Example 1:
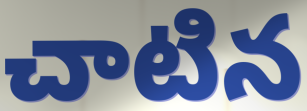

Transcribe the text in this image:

చాటిన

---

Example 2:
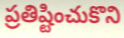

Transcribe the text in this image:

ప్రతిష్టించుకొని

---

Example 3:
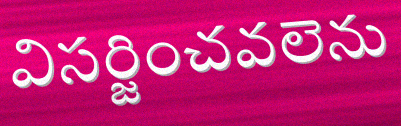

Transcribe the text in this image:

విసర్జించవలెను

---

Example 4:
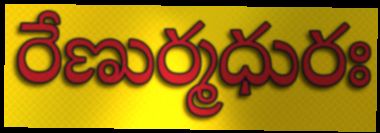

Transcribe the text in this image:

రేణుర్మధురః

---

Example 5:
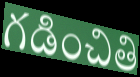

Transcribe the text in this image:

గడించితి